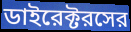
ডাইরেক্টরসের